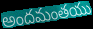
అందమంతయు